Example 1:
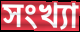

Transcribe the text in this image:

সংখ্যা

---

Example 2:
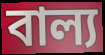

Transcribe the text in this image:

বাল্য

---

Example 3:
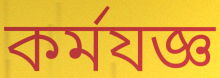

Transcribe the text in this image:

কর্মযজ্ঞ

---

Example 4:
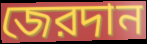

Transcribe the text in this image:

জেরদান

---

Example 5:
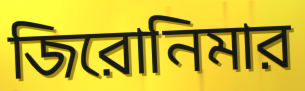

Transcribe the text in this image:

জিরোনিমার